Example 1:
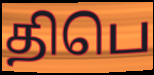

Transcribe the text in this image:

திபெ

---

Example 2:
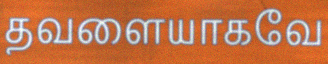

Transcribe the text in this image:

தவளையாகவே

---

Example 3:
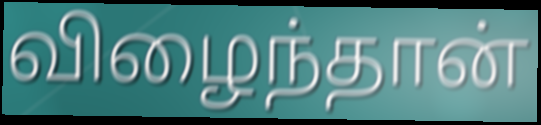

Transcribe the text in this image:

விழைந்தான்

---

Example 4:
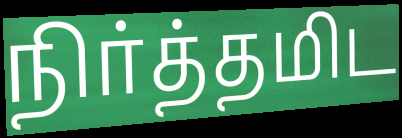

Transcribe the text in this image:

நிர்த்தமிட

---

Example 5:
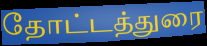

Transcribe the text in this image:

தோட்டத்துரை